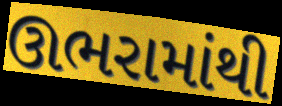
ઊભરામાંથી